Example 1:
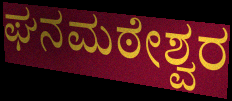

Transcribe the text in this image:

ಘನಮಠೇಶ್ವರ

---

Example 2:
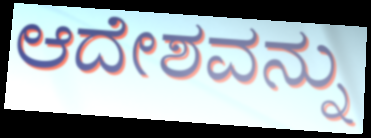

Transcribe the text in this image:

ಆದೇಶವನ್ನು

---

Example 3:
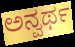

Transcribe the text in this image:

ಅನ್ವರ್ಥ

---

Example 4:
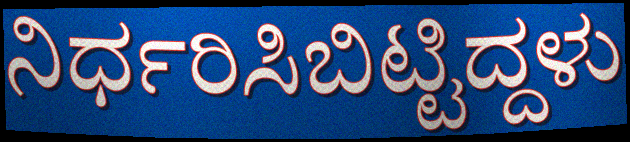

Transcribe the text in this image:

ನಿರ್ಧರಿಸಿಬಿಟ್ಟಿದ್ದಳು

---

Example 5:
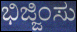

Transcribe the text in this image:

ಭಿಜ್ಜಿಂಸು